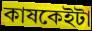
কাষকেইটা